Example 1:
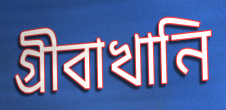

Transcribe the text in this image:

গ্রীবাখানি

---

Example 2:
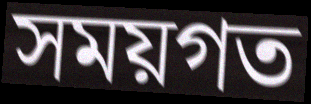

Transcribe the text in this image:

সময়গত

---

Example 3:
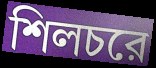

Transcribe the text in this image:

শিলচরে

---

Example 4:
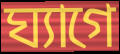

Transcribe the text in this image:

ঘ্যাগে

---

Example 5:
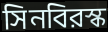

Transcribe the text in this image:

সিনবিরস্ক